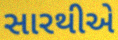
સારથીએ